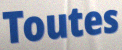
Toutes